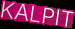
KALPIT